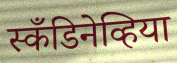
स्कँडिनेव्हिया